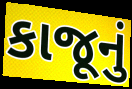
કાજૂનું